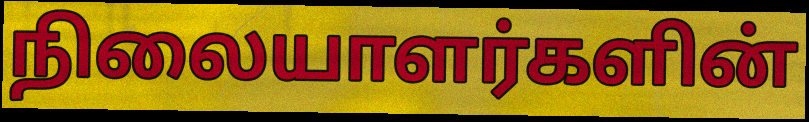
நிலையாளர்களின்